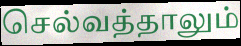
செல்வத்தாலும்